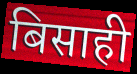
बिसाही